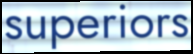
superiors